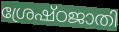
ശ്രേഷ്ഠജാതി